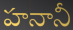
హనానీ